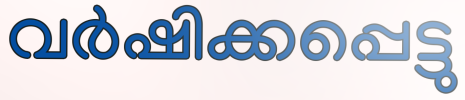
വർഷിക്കപ്പെട്ടു